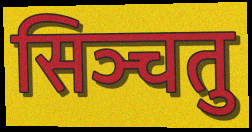
सिञ्चतु